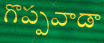
గొప్పవాడా